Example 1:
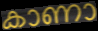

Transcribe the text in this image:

കാണാ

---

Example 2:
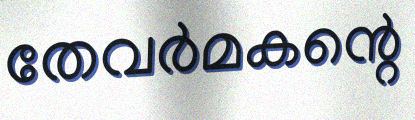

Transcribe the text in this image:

തേവർമകന്റെ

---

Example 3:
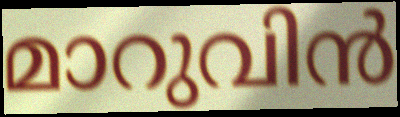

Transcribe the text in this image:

മാറുവിൻ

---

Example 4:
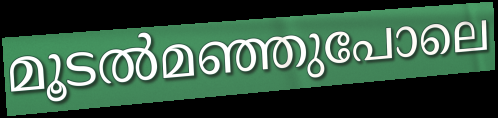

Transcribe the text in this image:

മൂടൽമഞ്ഞുപോലെ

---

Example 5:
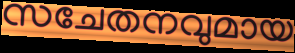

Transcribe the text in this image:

സചേതനവുമായ